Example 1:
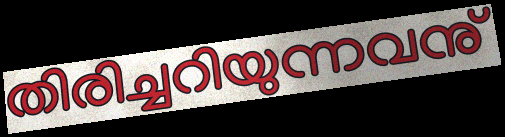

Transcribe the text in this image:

തിരിച്ചറിയുന്നവനു്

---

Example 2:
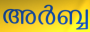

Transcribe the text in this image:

അർബ്ബ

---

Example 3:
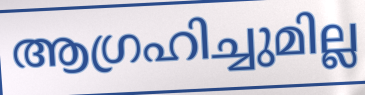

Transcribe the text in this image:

ആഗ്രഹിച്ചുമില്ല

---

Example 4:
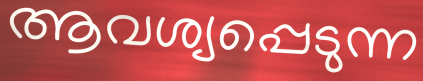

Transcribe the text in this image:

ആവശ്യപ്പെടുന്ന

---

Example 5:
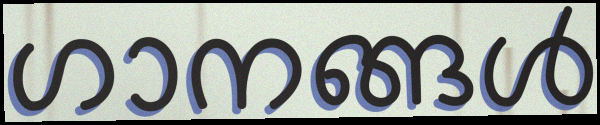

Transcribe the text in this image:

ഗാനങ്ങൾ